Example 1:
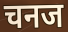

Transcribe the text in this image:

चनज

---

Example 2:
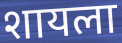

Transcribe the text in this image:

शायला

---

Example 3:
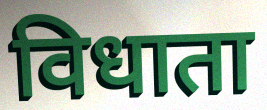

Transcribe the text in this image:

विधाता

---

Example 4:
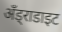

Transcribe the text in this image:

अँड्राडाइट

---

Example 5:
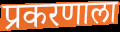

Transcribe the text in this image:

प्रकरणाला